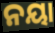
ନୟା